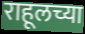
राहूलच्या